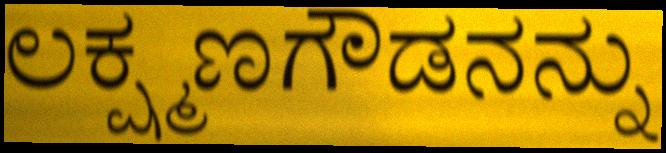
ಲಕ್ಷ್ಮಣಗೌಡನನ್ನು